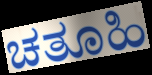
ಚತೂಹಿ